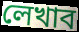
লেখাব